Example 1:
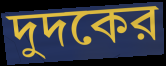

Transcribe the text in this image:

দুদকের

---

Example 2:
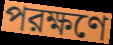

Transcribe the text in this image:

পরক্ষণে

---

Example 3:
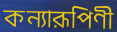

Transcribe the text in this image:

কন্যারূপিণী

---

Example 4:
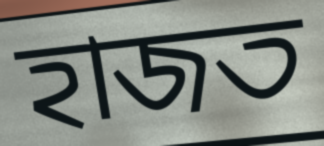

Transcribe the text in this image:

হাজত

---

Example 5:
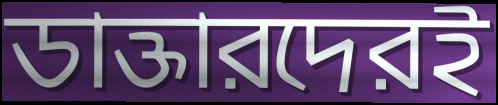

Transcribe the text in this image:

ডাক্তারদেরই